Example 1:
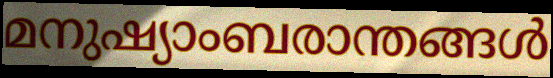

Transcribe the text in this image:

മനുഷ്യാംബരാന്തങ്ങൾ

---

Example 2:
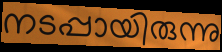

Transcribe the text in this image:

നടപ്പായിരുന്നു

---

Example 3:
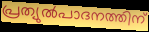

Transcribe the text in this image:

പ്രത്യുൽപാദനത്തിന്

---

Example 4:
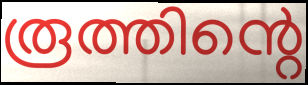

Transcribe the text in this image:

രൂത്തിന്റെ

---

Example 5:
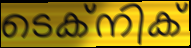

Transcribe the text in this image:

ടെക്നിക്